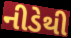
નીડેથી